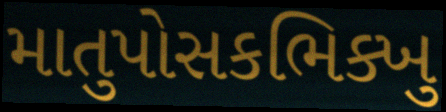
માતુપોસકભિક્ખુ